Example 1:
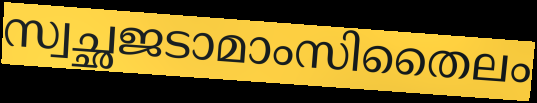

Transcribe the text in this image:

സ്വച്ഛജടാമാംസിതൈലം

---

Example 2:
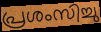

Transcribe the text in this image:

പ്രശംസിച്ചു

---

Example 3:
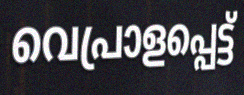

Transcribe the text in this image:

വെപ്രാളപ്പെട്ട്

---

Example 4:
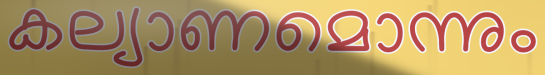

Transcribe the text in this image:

കല്യാണമൊന്നും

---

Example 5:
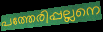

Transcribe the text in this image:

പത്തേരിപ്പല്ലനെ